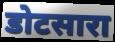
डोटसारा